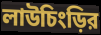
লাউচিংড়ির